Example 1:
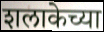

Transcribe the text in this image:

शलाकेच्या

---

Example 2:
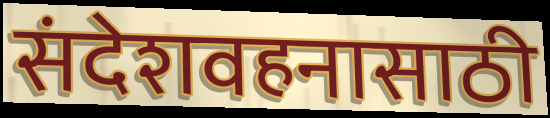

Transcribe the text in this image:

संदेशवहनासाठी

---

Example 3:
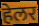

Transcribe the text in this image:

हेलर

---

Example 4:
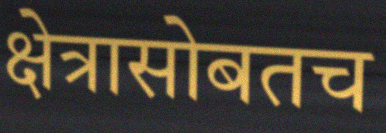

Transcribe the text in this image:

क्षेत्रासोबतच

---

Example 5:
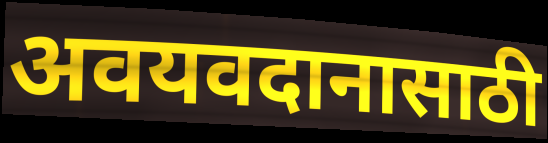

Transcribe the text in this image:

अवयवदानासाठी